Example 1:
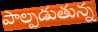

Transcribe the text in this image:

పాల్పడుతున్న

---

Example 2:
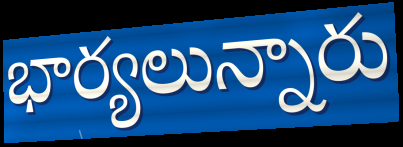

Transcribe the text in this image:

భార్యలున్నారు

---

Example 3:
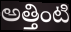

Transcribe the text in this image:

అత్తింటి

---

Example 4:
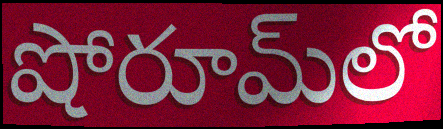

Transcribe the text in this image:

షోరూమ్‌లో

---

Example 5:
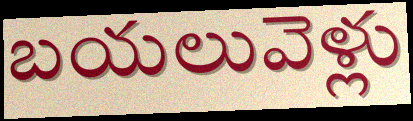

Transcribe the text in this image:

బయలువెళ్లు